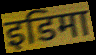
इडिमा